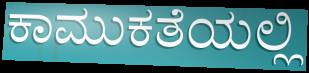
ಕಾಮುಕತೆಯಲ್ಲಿ